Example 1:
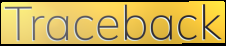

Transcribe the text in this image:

Traceback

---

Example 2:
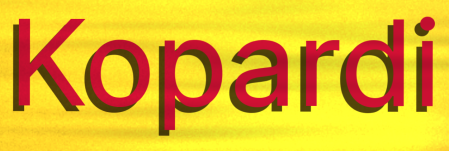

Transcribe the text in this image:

Kopardi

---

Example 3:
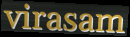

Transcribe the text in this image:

virasam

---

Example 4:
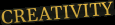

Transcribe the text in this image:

CREATIVITY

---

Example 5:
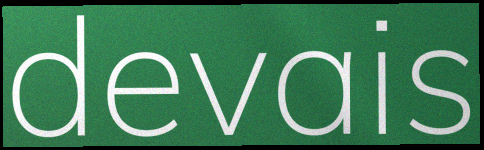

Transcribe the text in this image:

devais